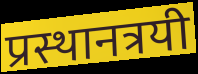
प्रस्थानत्रयी